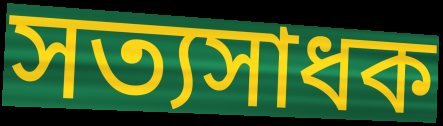
সত্যসাধক